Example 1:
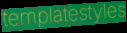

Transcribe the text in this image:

templatestyles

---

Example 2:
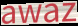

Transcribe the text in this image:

awaz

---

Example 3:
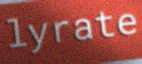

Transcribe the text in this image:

lyrate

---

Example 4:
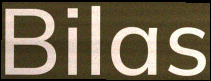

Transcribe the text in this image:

Bilas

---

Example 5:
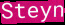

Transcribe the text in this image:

Steyn